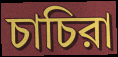
চাচিরা